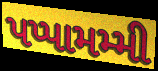
પપ્પામમ્મી